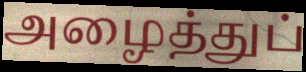
அழைத்துப்